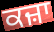
ਕਜ਼ਾ